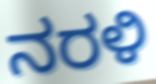
ನರಳಿ